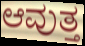
ಆವುತ್ತ